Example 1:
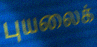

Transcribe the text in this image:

புயலைக்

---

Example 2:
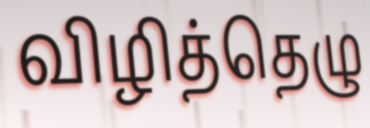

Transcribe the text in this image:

விழித்தெழு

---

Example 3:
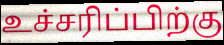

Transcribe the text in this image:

உச்சரிப்பிற்கு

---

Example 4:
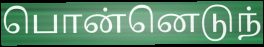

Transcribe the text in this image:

பொன்னெடுந்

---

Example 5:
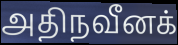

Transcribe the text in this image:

அதிநவீனக்